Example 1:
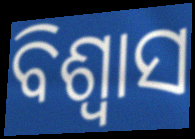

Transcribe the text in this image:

ବିଶ୍ଵାସ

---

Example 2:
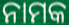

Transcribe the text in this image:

ନାମକ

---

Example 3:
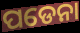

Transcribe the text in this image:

ପଡେନା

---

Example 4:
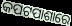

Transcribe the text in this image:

କପଟପାଶାରେ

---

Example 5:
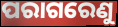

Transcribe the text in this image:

ପରାଗରେଣୁ